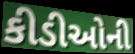
કીડીઓની